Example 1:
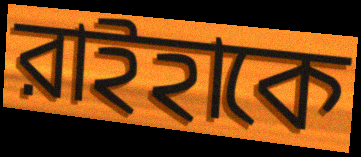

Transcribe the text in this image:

রাইহাকে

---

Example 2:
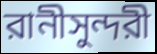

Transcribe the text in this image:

রানীসুন্দরী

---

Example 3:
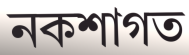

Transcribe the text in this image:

নকশাগত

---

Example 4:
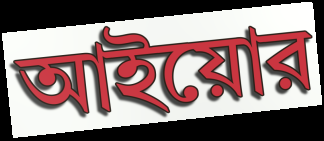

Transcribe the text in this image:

আইয়োর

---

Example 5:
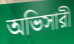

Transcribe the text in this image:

অভিসারী